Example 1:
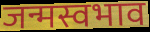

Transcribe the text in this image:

जन्मस्वभाव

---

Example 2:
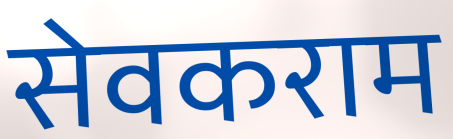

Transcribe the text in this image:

सेवकराम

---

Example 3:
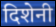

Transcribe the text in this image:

दिशेनी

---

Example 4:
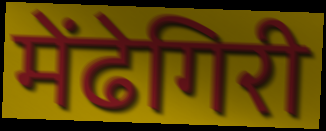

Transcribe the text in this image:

मेंढेगिरी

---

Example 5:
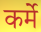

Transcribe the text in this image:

कर्मे